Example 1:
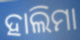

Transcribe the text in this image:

ହାଲିମା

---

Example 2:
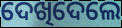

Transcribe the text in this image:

ଦେଖିଦେଲେ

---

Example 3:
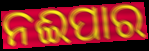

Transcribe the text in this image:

ନଈପାର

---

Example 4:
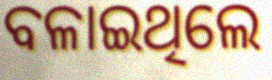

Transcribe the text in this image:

ବଳାଇଥିଲେ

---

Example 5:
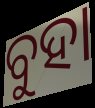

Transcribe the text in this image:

ବୁହା